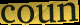
coun